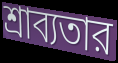
শ্রাব্যতার